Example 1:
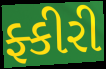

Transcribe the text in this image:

ફ્કીરી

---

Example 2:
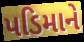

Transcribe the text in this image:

પડિમાને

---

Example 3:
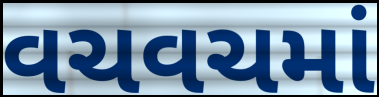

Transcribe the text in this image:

વચવચમાં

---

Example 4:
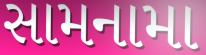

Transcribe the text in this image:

સામનામા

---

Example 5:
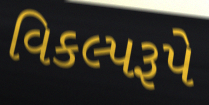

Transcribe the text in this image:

વિકલ્પરૂપે